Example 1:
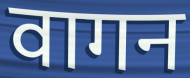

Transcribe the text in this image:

वागन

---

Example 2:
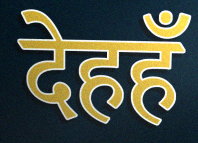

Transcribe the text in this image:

देहहँ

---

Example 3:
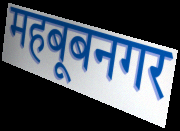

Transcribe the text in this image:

महबूबनगर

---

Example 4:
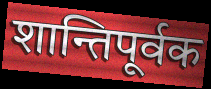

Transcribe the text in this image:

शान्तिपूर्वक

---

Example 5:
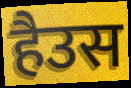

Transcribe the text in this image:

हैउस